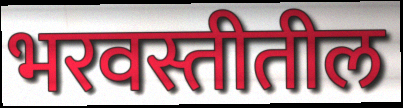
भरवस्तीतील